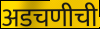
अडचणीची